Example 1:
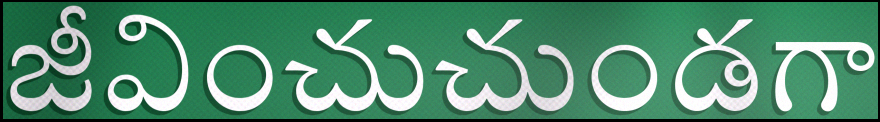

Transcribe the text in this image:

జీవించుచుండగా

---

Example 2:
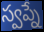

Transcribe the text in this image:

స్వప్నే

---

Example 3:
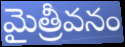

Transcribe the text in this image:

మైత్రీవనం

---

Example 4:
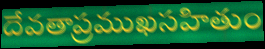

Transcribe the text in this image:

దేవతాప్రముఖసహితుం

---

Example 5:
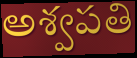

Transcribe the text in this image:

అశ్వపతి